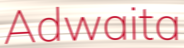
Adwaita